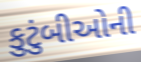
કુટુંબીઓની